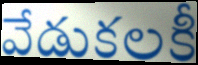
వేడుకలకీ